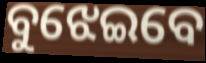
ବୁଝେଇବେ